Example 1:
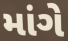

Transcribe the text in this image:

માંગે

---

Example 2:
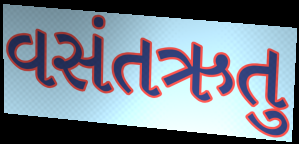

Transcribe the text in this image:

વસંતઋતુ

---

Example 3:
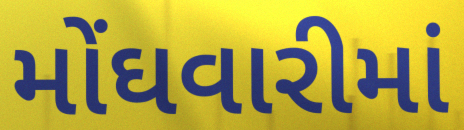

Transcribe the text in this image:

મોંઘવારીમાં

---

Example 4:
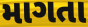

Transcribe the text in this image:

માગતા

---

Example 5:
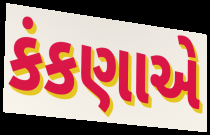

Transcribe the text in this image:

કંકણાએ